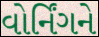
વોર્નિંગને